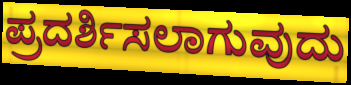
ಪ್ರದರ್ಶಿಸಲಾಗುವುದು